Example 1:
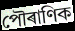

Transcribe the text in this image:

পৌৰাণিক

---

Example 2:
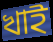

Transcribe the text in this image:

খাই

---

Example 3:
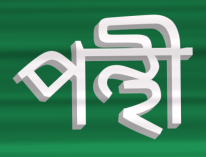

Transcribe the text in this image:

পন্থী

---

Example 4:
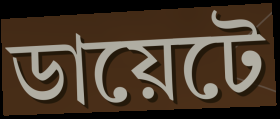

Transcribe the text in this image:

ডায়েটে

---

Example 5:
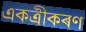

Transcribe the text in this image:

একত্ৰীকৰণ